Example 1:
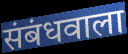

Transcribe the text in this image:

संबंधवाला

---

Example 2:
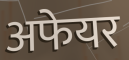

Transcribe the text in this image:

अफेयर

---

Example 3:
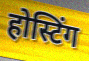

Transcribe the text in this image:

होस्टिंग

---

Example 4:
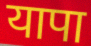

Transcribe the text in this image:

यापा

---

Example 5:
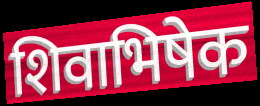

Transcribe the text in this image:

शिवाभिषेक